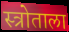
स्त्रोताला